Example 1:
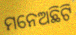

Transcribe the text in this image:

ମନେଅଛିଟି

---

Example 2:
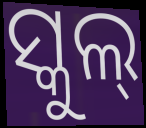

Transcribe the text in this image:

ସ୍କୁଲ୍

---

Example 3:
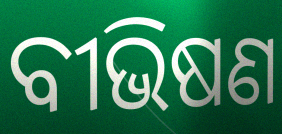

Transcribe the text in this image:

ବୀଭିଷଣ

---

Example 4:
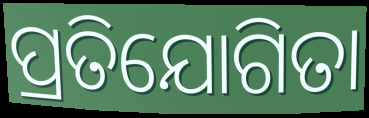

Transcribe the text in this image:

ପ୍ରତିଯୋଗିତା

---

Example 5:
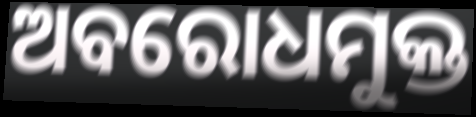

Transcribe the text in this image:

ଅବରୋଧମୁକ୍ତ